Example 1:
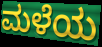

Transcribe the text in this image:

ಮಳೆಯ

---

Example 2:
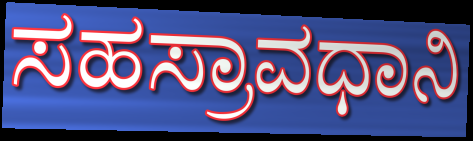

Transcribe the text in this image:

ಸಹಸ್ರಾವಧಾನಿ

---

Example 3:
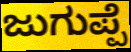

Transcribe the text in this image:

ಜುಗುಪ್ಪೆ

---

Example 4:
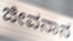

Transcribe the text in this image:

ಜೀವನಾನ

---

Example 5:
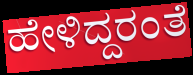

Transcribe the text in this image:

ಹೇಳಿದ್ದರಂತೆ